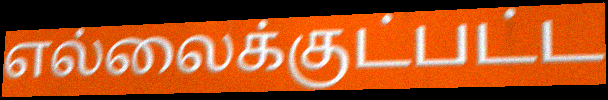
எல்லைக்குட்பட்ட